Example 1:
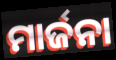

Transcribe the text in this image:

ମାର୍ଜନା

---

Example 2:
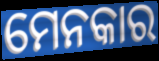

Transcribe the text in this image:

ମେନକାର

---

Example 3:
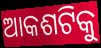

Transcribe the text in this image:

ଆକଶଟିକୁ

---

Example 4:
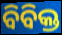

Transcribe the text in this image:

ବିବିକ୍ତ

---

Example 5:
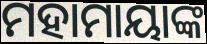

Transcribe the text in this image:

ମହାମାୟାଙ୍କ